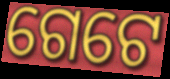
ଗେଟେ